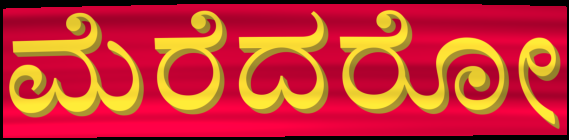
ಮೆರೆದರೋ